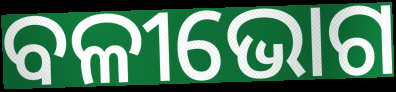
ବଳୀଭୋଗ